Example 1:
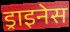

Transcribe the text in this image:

ड्राइनेस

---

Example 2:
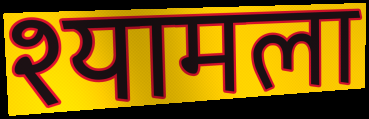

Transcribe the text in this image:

श्यामला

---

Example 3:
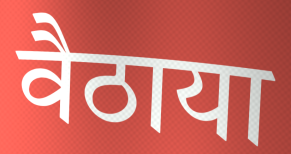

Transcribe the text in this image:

वैठाया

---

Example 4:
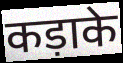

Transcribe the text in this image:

कड़ाके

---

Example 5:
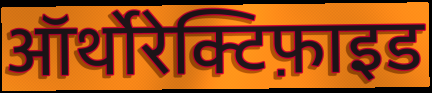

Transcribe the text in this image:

ऑर्थोरेक्टिफ़ाइड